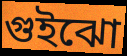
গুইঝো